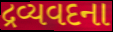
દ્રવ્યવદના